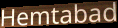
Hemtabad